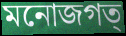
মনোজগত্